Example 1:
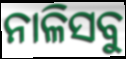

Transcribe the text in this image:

ନାଳିସବୁ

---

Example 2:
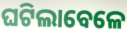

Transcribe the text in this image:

ଘଟିଲାବେଳେ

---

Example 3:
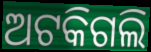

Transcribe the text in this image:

ଅଟକିଗଲି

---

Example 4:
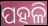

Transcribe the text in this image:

ପହଳି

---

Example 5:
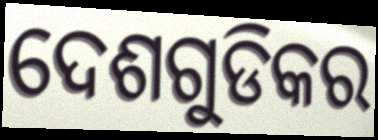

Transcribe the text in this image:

ଦେଶଗୁଡିକର